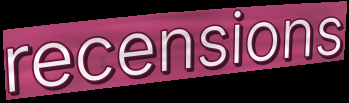
recensions